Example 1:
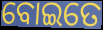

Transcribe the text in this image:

ବୋଇତେ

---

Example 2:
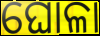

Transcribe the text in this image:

ଘୋଳା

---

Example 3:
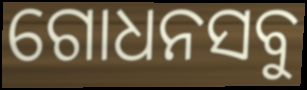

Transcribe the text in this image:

ଗୋଧନସବୁ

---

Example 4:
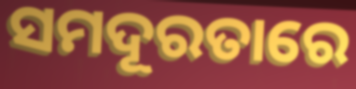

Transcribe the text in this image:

ସମଦୂରତାରେ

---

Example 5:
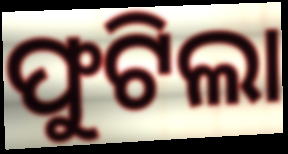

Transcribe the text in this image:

ଫୁଟିଲା